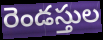
రెండస్తుల